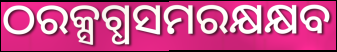
ଠରକ୍ସଗ୍ଧସମରକ୍ଷକ୍ଷବ